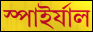
স্পাইর্যাল